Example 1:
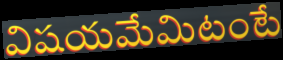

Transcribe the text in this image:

విషయమేమిటంటే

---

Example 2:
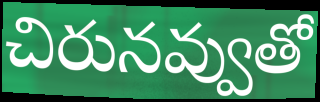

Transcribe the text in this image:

చిరునవ్వుతో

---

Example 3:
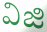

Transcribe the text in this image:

విజి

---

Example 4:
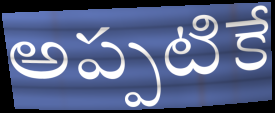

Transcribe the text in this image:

అప్పటికే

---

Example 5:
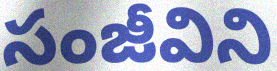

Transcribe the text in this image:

సంజీవిని